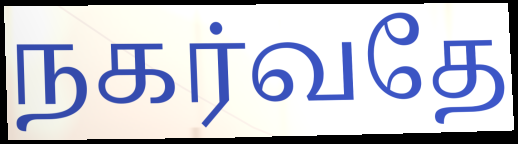
நகர்வதே